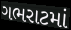
ગભરાટમાં